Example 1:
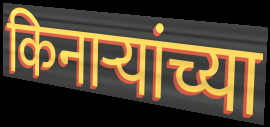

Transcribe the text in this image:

किनाऱ्यांच्या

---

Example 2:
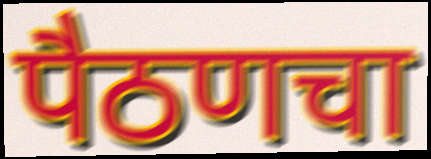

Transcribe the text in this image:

पैठणचा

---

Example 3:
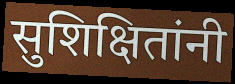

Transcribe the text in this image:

सुशिक्षितांनी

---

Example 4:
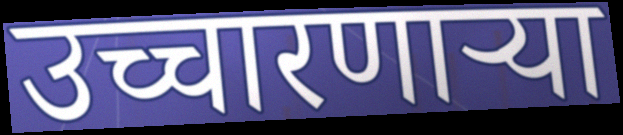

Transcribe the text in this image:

उच्चारणाऱ्या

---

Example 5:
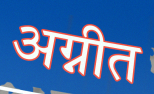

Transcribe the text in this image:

अग्नीत